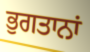
ਭੁਗਤਾਨਾਂ